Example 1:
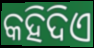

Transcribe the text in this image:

କହିଦିଏ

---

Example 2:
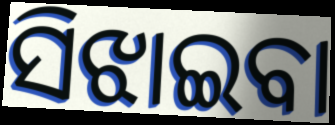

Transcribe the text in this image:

ସିଝାଇବା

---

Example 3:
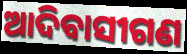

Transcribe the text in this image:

ଆଦିବାସୀଗଣ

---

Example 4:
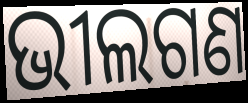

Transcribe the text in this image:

ଭୀଲଗଣ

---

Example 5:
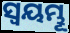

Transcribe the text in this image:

ସ୍ଵୟମ୍ଭୂ